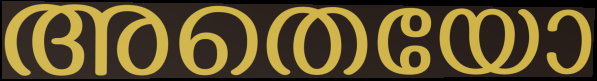
അതെയോ